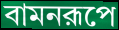
বামনরূপে